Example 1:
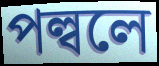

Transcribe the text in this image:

পল্বলে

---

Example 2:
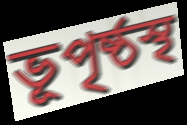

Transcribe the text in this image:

ভূপৃষ্ঠস্থ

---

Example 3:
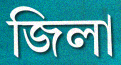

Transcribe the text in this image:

জিলা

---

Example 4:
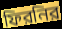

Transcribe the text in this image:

ফিরনির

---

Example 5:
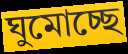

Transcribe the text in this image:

ঘুমোচ্ছে